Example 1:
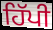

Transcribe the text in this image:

ਹਿੱਪੀ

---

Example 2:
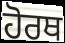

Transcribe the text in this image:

ਹੋਰਥ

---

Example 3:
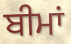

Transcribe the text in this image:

ਬੀਮਾਂ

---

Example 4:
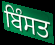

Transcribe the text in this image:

ਬਿੰਸਤ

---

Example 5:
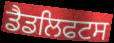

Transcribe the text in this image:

ਡੈਡਲਿਫਟਸ